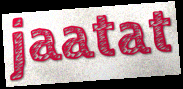
jaatat